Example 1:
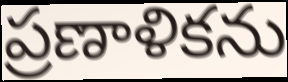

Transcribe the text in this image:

ప్రణాళికను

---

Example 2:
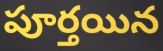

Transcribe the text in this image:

పూర్తయిన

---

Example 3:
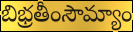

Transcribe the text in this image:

బిభ్రతీంసౌమ్యాం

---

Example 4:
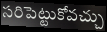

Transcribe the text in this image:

సరిపెట్టుకోవచ్చు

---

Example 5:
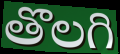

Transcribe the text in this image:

తొలగి